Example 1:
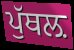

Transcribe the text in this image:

ਪੁੱਥਲ਼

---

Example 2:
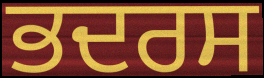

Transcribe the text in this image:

ਭਦਰਸ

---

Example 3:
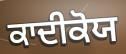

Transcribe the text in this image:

ਕਾਦੀਕੋਯ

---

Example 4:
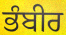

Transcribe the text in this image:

ਭੰਬੀਰ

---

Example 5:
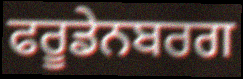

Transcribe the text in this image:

ਫਰੂਡੇਨਬਰਗ